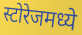
स्टोरेजमध्ये